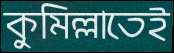
কুমিল্লাতেই